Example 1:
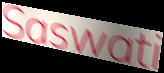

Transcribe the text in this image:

Saswati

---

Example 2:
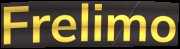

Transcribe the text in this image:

Frelimo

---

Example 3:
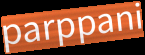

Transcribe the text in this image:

parppani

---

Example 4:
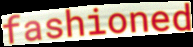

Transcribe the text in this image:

fashioned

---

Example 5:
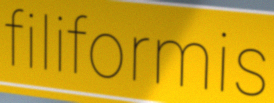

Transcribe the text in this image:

filiformis